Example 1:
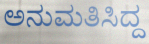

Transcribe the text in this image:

ಅನುಮತಿಸಿದ್ದ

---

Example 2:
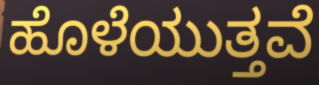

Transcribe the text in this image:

ಹೊಳೆಯುತ್ತವೆ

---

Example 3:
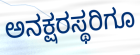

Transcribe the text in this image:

ಅನಕ್ಷರಸ್ಥರಿಗೂ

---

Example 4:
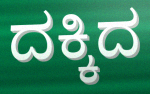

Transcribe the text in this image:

ದಕ್ಕಿದ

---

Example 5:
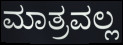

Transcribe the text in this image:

ಮಾತ್ರವಲ್ಲ